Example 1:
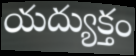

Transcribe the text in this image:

యద్యుక్తం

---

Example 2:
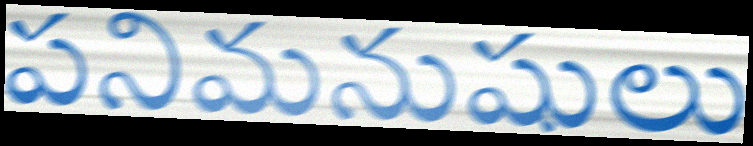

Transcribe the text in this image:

పనిమనుషులు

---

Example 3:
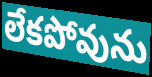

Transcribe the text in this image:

లేకపోవును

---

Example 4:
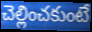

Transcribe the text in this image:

చెల్లించకుంటే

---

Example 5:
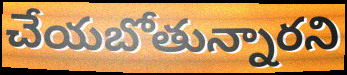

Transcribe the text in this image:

చేయబోతున్నారని